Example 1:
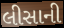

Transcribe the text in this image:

લીસાની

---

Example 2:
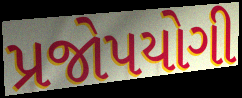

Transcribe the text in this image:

પ્રજોપયોગી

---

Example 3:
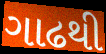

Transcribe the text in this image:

ગાઢથી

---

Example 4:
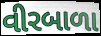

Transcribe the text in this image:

વીરબાળા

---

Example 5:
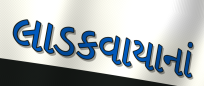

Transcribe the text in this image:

લાડકવાયાનાં